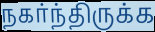
நகர்ந்திருக்க